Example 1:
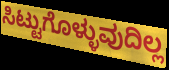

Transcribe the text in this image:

ಸಿಟ್ಟುಗೊಳ್ಳುವುದಿಲ್ಲ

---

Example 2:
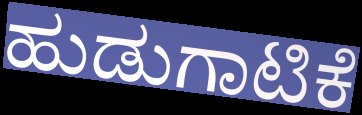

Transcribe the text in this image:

ಹುಡುಗಾಟಿಕೆ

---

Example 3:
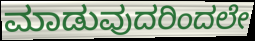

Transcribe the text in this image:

ಮಾಡುವುದರಿಂದಲೇ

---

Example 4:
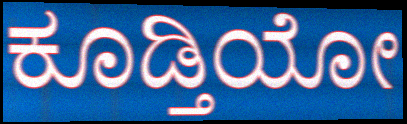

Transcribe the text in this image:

ಕೂಡ್ತಿಯೋ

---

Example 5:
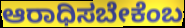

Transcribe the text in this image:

ಆರಾಧಿಸಬೇಕೆಂಬ